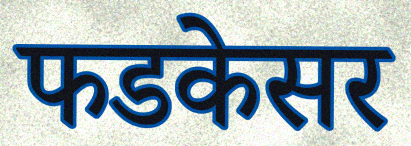
फडकेसर